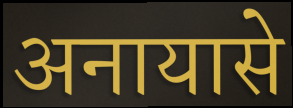
अनायासे